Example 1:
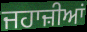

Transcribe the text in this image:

ਜਹਾਜ਼ੀਆਂ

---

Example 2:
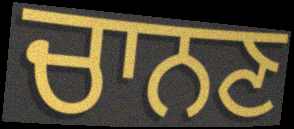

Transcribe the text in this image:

ਚਾਨਣ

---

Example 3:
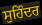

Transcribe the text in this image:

ਸੁਹਿੰਦਰ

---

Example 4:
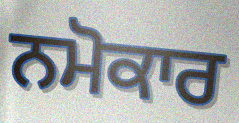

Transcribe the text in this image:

ਨਮੋਕਾਰ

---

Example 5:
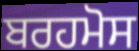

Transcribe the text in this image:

ਬਰਹਮੋਸ